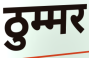
ठुम्मर